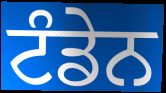
ਟੰਡੇਨ